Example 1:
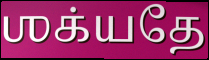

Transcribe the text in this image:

ஶக்யதே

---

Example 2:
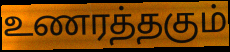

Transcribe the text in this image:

உணரத்தகும்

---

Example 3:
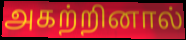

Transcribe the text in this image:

அகற்றினால்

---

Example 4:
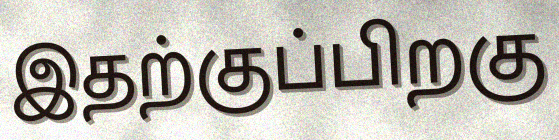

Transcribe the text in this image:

இதற்குப்பிறகு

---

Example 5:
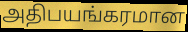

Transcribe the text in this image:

அதிபயங்கரமான